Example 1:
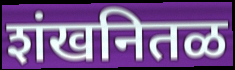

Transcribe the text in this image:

शंखनितळ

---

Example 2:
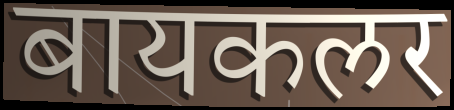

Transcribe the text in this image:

बायकलर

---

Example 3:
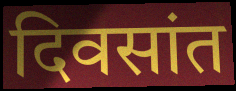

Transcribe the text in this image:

दिवसांत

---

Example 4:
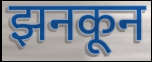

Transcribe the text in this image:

झनकून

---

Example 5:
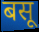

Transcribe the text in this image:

बसू